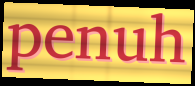
penuh